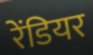
रेंडियर